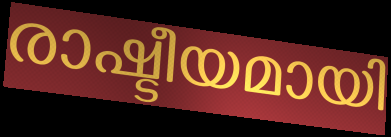
രാഷ്ടീയമായി